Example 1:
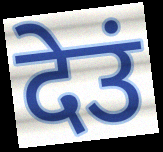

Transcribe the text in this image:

देउं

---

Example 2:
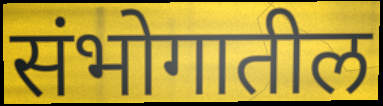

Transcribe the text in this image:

संभोगातील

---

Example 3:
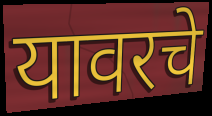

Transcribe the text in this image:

यावरचे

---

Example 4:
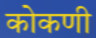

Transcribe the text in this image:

कोकणी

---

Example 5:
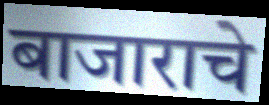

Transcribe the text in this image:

बाजाराचे